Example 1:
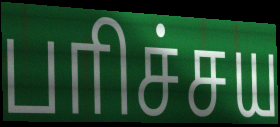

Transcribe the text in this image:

பரிச்சய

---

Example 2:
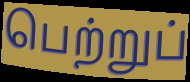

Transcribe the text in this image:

பெற்றுப்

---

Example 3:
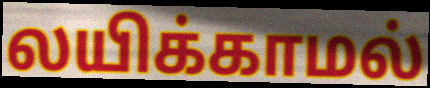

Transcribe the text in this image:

லயிக்காமல்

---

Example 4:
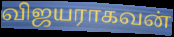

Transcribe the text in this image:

விஜயராகவன்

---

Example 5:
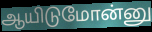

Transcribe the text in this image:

ஆயிடுமோன்னு